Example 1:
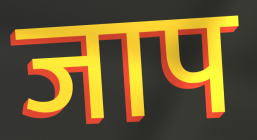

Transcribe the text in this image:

जाप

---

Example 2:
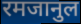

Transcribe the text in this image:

रमजानुल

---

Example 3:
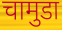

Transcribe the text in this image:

चामुडा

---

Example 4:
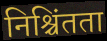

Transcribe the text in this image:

निश्चिंतता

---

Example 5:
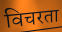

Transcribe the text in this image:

विचरता